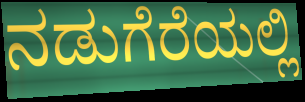
ನಡುಗೆರೆಯಲ್ಲಿ